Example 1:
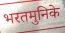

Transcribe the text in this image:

भरतमुनिके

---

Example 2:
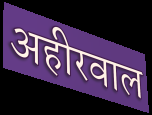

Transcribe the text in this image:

अहीरवाल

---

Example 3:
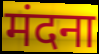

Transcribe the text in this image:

मंदना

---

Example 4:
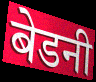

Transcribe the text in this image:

बेडनी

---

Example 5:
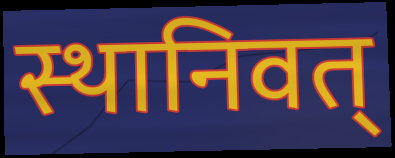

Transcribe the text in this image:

स्थानिवत्